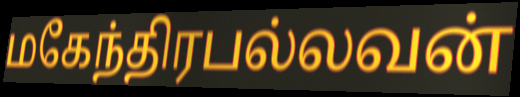
மகேந்திரபல்லவன்